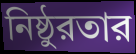
নিষ্ঠুরতার